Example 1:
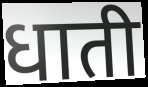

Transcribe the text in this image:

धाती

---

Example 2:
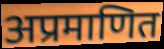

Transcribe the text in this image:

अप्रमाणित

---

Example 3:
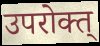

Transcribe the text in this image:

उपरोक्त्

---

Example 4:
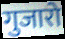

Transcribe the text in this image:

गुजारो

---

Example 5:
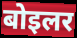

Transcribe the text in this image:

बोइलर